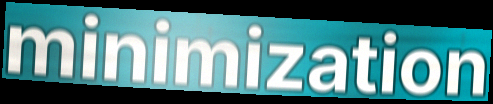
minimization